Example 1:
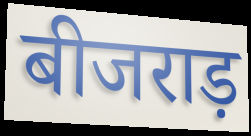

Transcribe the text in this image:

बीजराड़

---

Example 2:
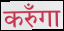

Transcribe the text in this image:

करुँगा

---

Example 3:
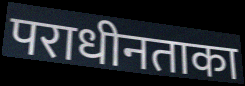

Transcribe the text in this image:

पराधीनताका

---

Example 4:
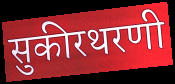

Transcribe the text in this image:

सुकीरथरणी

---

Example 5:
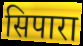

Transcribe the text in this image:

सिपारा